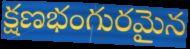
క్షణభంగురమైన